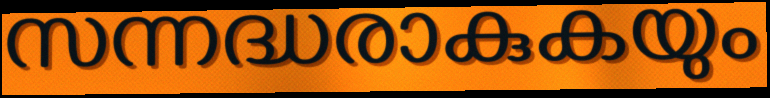
സന്നദ്ധരാകുകയും